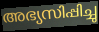
അഭ്യസിപ്പിച്ചു